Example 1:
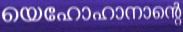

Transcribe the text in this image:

യെഹോഹാനാന്റെ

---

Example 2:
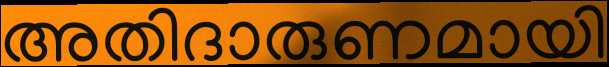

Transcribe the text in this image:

അതിദാരുണമായി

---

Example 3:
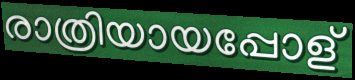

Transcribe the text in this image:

രാത്രിയായപ്പോള്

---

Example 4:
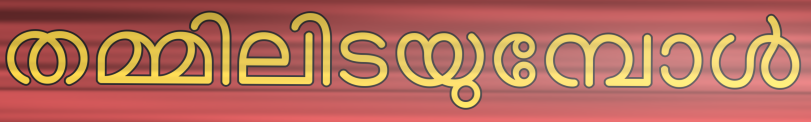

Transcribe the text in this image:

തമ്മിലിടയുമ്പോൾ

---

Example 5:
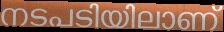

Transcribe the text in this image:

നടപടിയിലാണ്